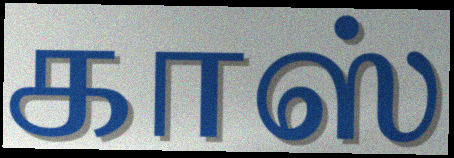
காஸ்